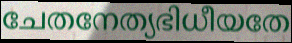
ചേതനേത്യഭിധീയതേ